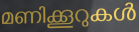
മണിക്കൂറുകൾ